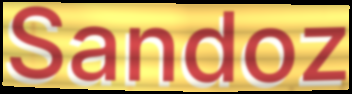
Sandoz